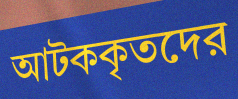
আটককৃতদের